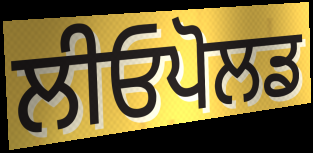
ਲੀਓਪੋਲਡ